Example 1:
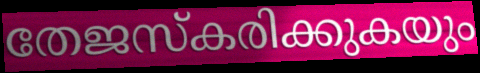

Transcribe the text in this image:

തേജസ്കരിക്കുകയും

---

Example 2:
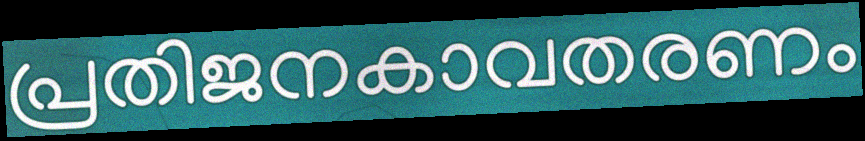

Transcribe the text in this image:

പ്രതിജനകാവതരണം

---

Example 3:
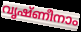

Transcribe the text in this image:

വൃഷ്ണീനാം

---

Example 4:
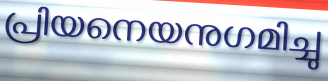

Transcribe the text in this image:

പ്രിയനെയനുഗമിച്ചു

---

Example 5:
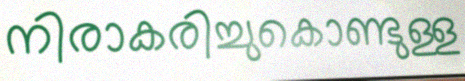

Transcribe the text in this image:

നിരാകരിച്ചുകൊണ്ടുള്ള